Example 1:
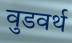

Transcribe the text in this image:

वुडवर्थ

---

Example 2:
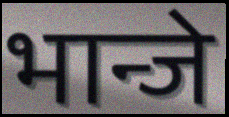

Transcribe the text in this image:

भान्जे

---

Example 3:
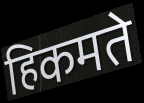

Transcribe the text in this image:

हिकमते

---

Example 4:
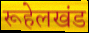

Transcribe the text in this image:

रूहेलखंड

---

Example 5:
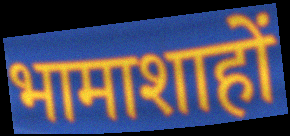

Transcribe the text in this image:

भामाशाहों